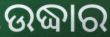
ଉଦ୍ଧାର